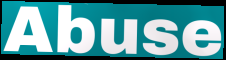
Abuse